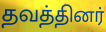
தவத்தினர்